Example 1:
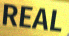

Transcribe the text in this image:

REAL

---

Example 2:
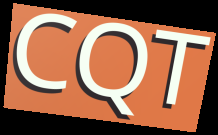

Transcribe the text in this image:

CQT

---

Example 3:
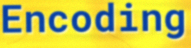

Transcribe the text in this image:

Encoding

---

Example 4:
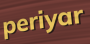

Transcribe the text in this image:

periyar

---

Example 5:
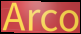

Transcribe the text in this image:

Arco